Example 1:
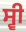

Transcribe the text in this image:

ਸ੍ਵੀ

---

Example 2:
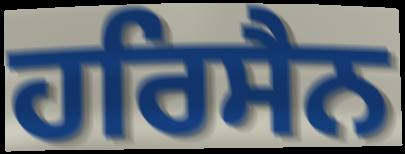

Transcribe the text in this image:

ਹਰਿਸੈਨ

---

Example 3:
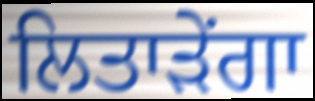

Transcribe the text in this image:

ਲਿਤਾੜੇਂਗਾ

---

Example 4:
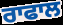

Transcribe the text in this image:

ਰਾਫਾਲ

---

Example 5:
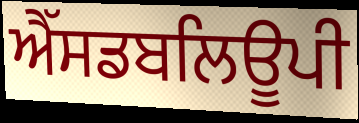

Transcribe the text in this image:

ਐੱਸਡਬਲਿਊਪੀ